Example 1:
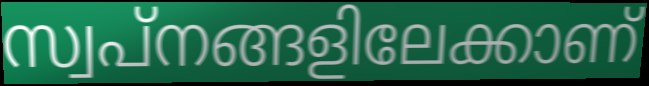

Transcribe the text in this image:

സ്വപ്നങ്ങളിലേക്കാണ്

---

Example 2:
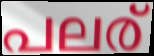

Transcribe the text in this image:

പലര്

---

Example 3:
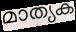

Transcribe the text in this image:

മാത്യക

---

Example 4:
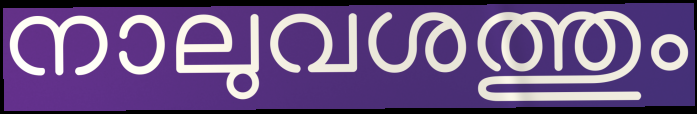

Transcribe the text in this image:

നാലുവശത്തും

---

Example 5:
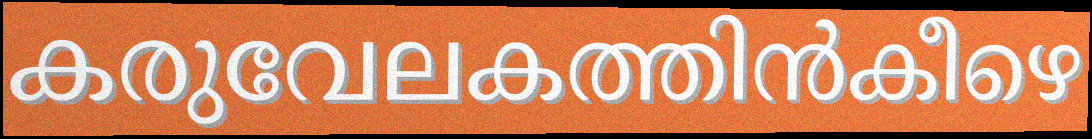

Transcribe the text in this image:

കരുവേലകത്തിൻകീഴെ